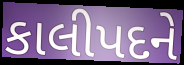
કાલીપદને